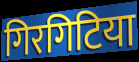
गिरगिटिया